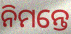
ନିମନ୍ତେ